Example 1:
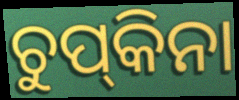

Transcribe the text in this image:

ଚୁପ୍‌କିନା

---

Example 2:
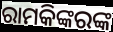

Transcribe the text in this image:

ରାମକିଙ୍କରଙ୍କ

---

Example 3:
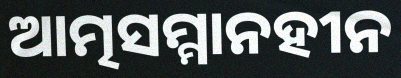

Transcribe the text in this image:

ଆତ୍ମସମ୍ମାନହୀନ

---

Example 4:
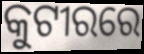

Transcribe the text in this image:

କୁଟୀରରେ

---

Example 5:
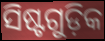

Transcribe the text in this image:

ସିଷ୍ଟଗୁଡ଼ିକ